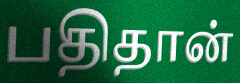
பதிதான்